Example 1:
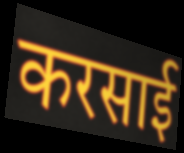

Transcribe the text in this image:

करसाई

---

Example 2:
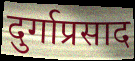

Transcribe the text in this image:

दुर्गाप्रसाद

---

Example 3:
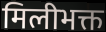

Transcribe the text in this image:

मिलीभक्त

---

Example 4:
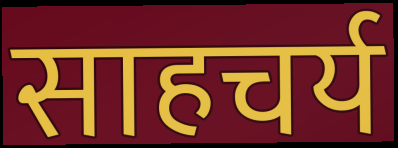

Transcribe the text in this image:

साहचर्य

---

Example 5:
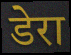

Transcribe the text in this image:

डेरा